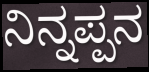
ನಿನ್ನಪ್ಪನ